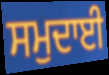
ਸਮੁਦਾਈ